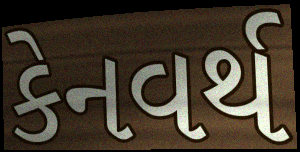
કેનવર્થ